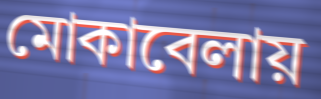
মোকাবেলায়